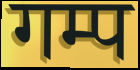
गम्प